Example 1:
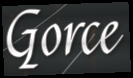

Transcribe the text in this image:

Gorce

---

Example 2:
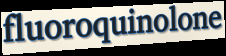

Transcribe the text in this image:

fluoroquinolone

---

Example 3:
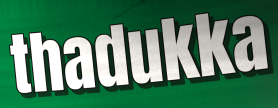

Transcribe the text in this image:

thadukka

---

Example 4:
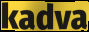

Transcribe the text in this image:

kadva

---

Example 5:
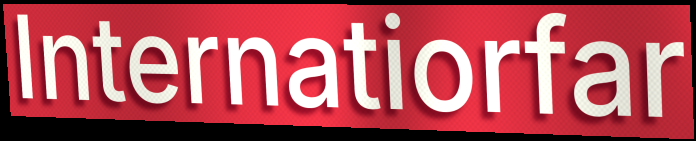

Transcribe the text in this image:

Internatiorfar